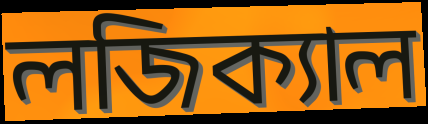
লজিক্যাল